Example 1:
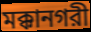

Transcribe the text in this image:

মক্কানগরী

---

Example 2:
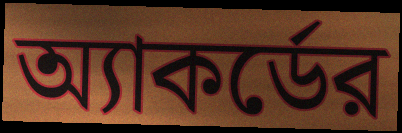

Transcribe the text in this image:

অ্যাকর্ডের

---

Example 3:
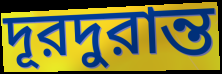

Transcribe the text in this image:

দূরদুরান্ত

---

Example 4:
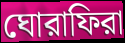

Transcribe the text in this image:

ঘোরাফিরা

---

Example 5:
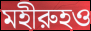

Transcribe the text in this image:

মহীরুহও